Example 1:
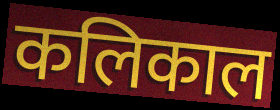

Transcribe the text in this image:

कलिकाल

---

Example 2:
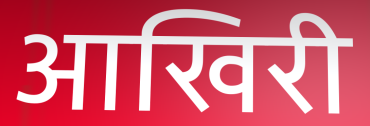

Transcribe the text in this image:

आखिरी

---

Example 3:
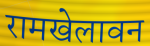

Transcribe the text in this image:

रामखेलावन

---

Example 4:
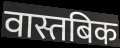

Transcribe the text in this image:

वास्तबिक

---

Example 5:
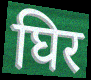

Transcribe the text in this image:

घिर